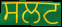
ਸਲਟ